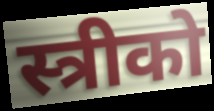
स्त्रीको